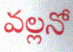
వల్లనో